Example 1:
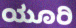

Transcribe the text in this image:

ಯೂರಿ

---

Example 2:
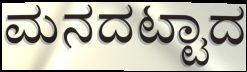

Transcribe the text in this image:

ಮನದಟ್ಟಾದ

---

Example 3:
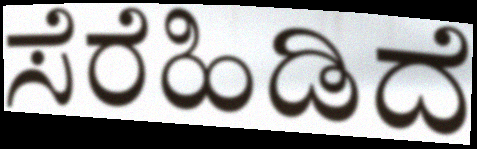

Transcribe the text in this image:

ಸೆರೆಹಿಡಿದೆ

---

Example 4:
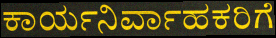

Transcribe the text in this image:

ಕಾರ್ಯನಿರ್ವಾಹಕರಿಗೆ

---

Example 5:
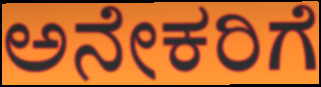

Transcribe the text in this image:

ಅನೇಕರಿಗೆ